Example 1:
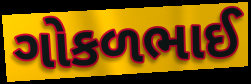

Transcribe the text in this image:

ગોકળભાઈ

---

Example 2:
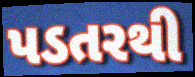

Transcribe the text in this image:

પડતરથી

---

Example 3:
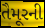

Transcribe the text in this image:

તૈમૂરની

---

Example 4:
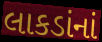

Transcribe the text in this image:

લાકડાંનાં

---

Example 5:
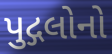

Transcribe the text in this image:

પુદ્ગલોનો